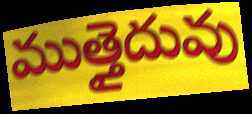
ముత్తైదువు